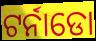
ଟର୍ନାଡୋ